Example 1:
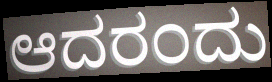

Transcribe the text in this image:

ಆದರಂದು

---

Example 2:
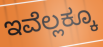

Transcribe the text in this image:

ಇವೆಲ್ಲಕ್ಕೂ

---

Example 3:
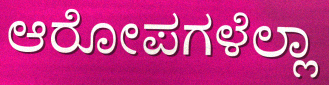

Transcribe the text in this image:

ಆರೋಪಗಳೆಲ್ಲಾ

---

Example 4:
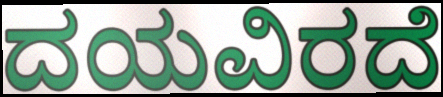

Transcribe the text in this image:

ದಯವಿರದೆ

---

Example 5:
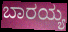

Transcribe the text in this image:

ಬಾರಯ್ಯ